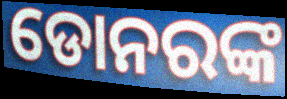
ଡୋନରଙ୍କ